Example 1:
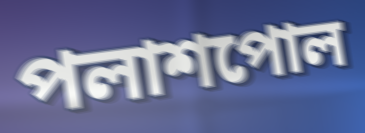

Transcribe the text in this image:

পলাশপোল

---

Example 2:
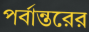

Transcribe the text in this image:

পর্বান্তরের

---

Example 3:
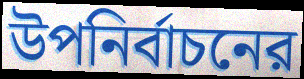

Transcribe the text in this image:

উপনির্বাচনের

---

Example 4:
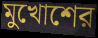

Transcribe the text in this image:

মুখোশের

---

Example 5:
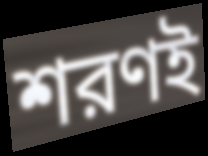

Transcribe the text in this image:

শরণই